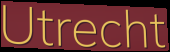
Utrecht